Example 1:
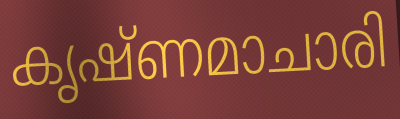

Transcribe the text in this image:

കൃഷ്ണമാചാരി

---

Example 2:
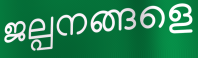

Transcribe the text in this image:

ജല്പനങ്ങളെ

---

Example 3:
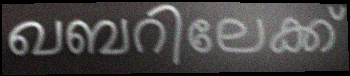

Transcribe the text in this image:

ഖബറിലേക്ക്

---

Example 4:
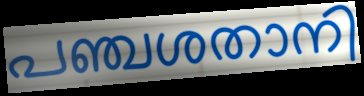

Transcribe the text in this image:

പഞ്ചശതാനി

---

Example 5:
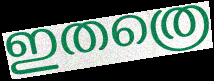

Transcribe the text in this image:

ഇതത്രെ